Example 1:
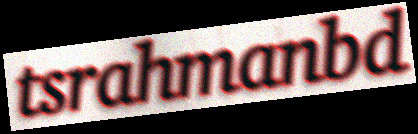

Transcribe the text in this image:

tsrahmanbd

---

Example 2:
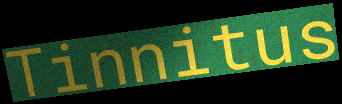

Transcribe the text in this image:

Tinnitus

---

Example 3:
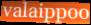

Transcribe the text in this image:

valaippoo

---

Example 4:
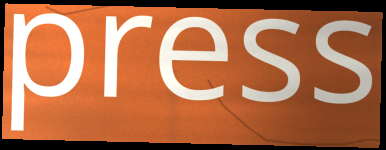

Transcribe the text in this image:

press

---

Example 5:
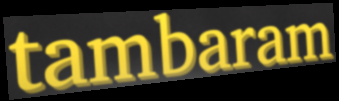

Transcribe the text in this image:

tambaram